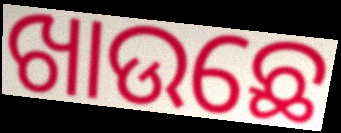
ଖାଉଛେ